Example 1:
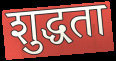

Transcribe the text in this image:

शुद्धता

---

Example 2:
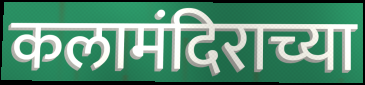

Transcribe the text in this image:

कलामंदिराच्या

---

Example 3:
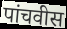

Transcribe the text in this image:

पांचवीस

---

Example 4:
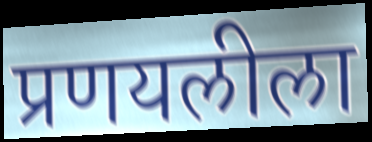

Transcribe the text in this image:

प्रणयलीला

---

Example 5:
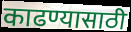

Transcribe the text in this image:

काढण्यासाठी